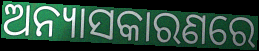
ଅନ୍ୟାସକାରଣରେ